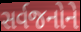
સર્વજનોને